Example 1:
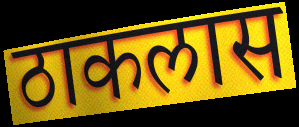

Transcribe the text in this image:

ठाकलास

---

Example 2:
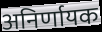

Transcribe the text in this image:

अनिर्णायक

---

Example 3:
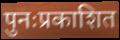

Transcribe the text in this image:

पुनःप्रकाशित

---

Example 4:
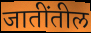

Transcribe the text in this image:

जातींतील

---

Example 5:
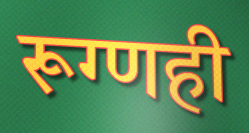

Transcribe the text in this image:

रूग्णही